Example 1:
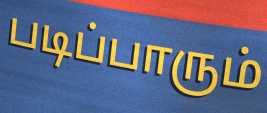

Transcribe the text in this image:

படிப்பாரும்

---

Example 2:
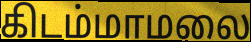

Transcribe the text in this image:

கிடம்மாமலை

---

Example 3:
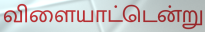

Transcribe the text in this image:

விளையாட்டென்று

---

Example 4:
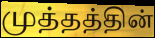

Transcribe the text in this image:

முத்தத்தின்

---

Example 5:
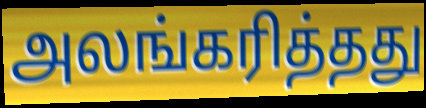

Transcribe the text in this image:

அலங்கரித்தது